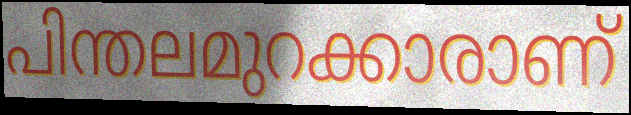
പിന്തലമുറക്കാരാണ്